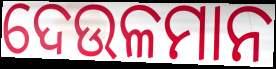
ଦେଉଳମାନ